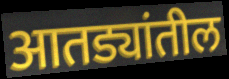
आतड्यांतील